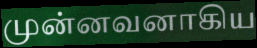
முன்னவனாகிய